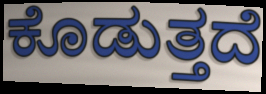
ಕೊಡುತ್ತದೆ